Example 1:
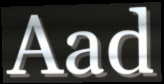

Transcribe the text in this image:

Aad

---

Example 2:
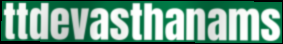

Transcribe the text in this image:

ttdevasthanams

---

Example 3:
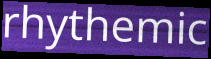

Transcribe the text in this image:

rhythemic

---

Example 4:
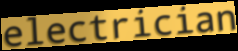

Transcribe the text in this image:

electrician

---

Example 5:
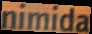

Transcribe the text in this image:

nimida